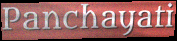
Panchayati